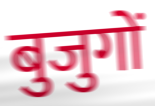
बुजुगों